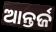
ଆନ୍ତର୍ଜ